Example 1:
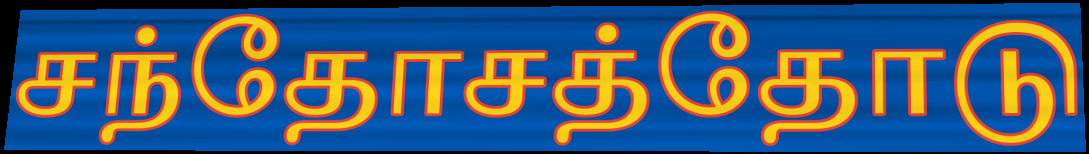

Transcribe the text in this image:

சந்தோசத்தோடு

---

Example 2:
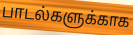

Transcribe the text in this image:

பாடல்களுக்காக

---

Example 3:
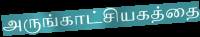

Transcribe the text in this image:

அருங்காட்சியகத்தை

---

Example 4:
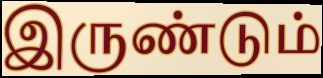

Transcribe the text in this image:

இருண்டும்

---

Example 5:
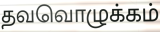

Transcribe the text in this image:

தவவொழுக்கம்